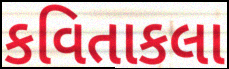
કવિતાકલા